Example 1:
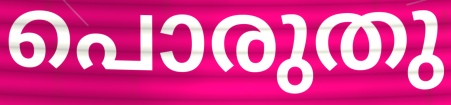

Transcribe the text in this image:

പൊരുതു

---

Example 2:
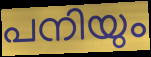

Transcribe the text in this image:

പനിയും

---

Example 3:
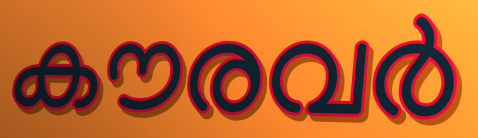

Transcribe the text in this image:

കൗരവർ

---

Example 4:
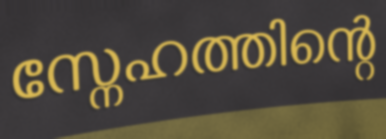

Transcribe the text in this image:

സ്നേഹത്തിന്റെ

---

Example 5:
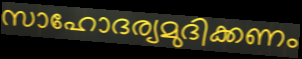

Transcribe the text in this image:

സാഹോദര്യമുദിക്കണം